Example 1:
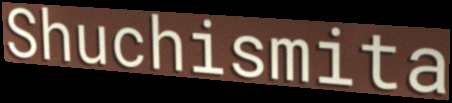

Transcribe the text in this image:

Shuchismita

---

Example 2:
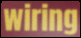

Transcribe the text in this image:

wiring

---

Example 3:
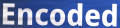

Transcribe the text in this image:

Encoded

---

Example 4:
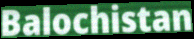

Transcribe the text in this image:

Balochistan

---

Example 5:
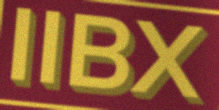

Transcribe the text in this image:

IIBX